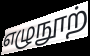
எழுநூற்